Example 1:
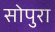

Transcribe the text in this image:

सोपुरा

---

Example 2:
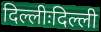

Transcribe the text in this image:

दिल्लीःदिल्ली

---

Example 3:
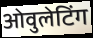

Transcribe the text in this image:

ओवुलेटिंग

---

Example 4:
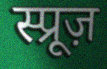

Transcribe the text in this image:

स्प्रूज़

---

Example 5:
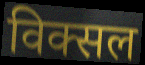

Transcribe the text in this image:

विक्सल